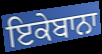
ਇਕੇਬਾਨਾ